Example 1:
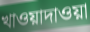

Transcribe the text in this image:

খাওয়াদাওয়া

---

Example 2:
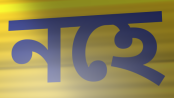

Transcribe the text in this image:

নহে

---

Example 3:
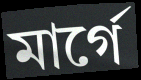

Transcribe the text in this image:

মার্গে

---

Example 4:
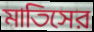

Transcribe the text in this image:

মাতিসের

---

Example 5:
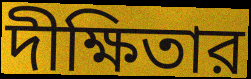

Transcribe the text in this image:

দীক্ষিতার